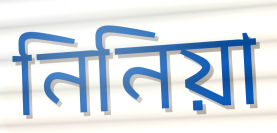
নিনিয়া